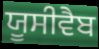
ਯੂਸੀਵੈਬ